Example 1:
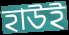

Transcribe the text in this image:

হাউই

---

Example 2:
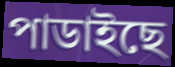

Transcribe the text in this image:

পাডাইছে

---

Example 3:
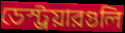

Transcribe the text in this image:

ডেস্ট্রয়ারগুলি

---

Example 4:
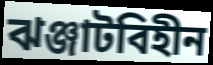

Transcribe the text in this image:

ঝঞ্জাটবিহীন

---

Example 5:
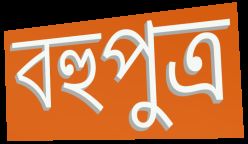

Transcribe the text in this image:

বহুপুত্র